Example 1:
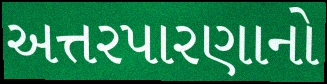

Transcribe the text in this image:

અત્તરપારણાનો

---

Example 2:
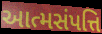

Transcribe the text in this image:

આત્મસંપત્તિ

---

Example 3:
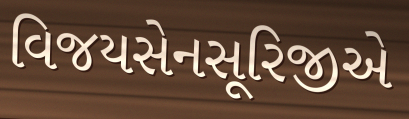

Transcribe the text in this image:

વિજયસેનસૂરિજીએ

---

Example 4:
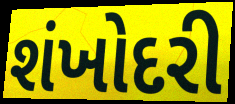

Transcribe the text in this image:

શંખોદરી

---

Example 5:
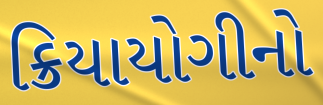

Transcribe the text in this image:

ક્રિયાયોગીનો